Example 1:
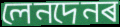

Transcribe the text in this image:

লেনদেনৰ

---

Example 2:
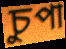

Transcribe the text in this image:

চুপা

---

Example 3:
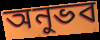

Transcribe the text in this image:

অনুভব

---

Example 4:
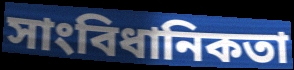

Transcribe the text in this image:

সাংবিধানিকতা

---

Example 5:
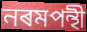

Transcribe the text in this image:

নৰমপন্থী